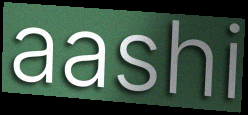
aashi